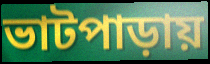
ভাটপাড়ায়